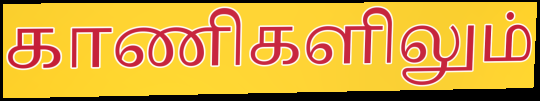
காணிகளிலும்